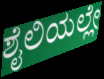
ಶೈಲಿಯಲ್ಲೇ